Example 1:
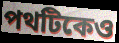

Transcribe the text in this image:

পথটিকেও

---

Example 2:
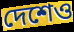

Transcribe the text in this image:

দেশেও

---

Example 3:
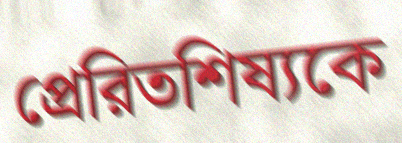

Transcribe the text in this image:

প্রেরিতশিষ্যকে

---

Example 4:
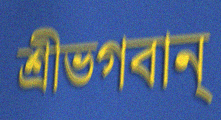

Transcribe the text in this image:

শ্রীভগবান্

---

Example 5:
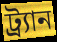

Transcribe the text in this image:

ট্র্যান